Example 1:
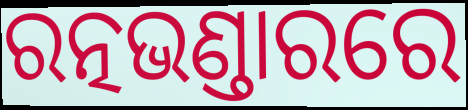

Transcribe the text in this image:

ରତ୍ନଭଣ୍ଡାରରେ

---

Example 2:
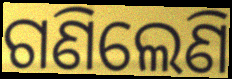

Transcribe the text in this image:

ଗଣିଲେଣି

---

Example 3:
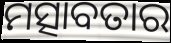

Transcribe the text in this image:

ମତ୍ସାବତାର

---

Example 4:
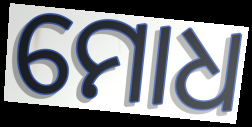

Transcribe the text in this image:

ମୋଧ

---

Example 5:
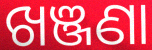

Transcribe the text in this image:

ଖଞ୍ଜଣା